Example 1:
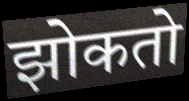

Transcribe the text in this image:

झोकतो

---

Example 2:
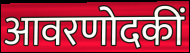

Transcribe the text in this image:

आवरणोदकीं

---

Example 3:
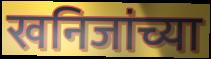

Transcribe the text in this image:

खनिजांच्या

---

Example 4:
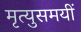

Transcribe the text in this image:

मृत्युसमयीं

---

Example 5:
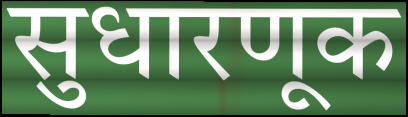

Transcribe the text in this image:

सुधारणूक